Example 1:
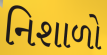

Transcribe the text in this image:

નિશાળો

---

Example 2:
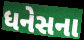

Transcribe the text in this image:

ધનેસના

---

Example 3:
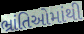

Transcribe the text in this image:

ભ્રાંતિઓમાંથી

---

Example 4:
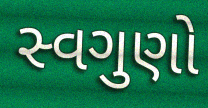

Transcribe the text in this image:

સ્વગુણો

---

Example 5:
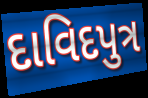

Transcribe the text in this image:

દાવિદપુત્ર